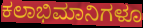
ಕಲಾಭಿಮಾನಿಗಳೂ